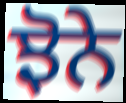
ਝੋਨੇ